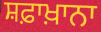
ਸ਼ਫ਼ਾਖ਼ਾਨਾ